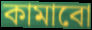
কামাবো